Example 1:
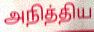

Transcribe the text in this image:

அநித்திய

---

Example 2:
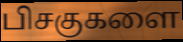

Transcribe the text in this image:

பிசகுகளை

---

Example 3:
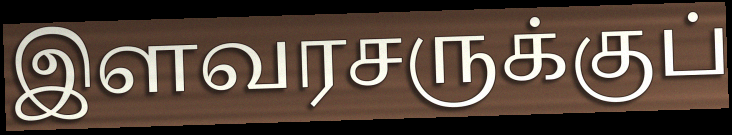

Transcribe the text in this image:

இளவரசருக்குப்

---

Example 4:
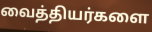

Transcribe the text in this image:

வைத்தியர்களை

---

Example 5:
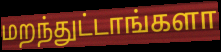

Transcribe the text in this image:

மறந்துட்டாங்களா